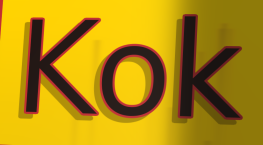
Kok